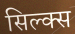
सिल्क्स